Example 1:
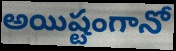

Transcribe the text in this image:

అయిష్టంగానో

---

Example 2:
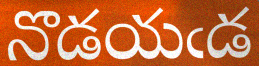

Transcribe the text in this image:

నొడయఁడ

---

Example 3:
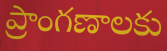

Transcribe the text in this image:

ప్రాంగణాలకు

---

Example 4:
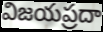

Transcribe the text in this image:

విజయప్రదా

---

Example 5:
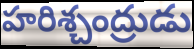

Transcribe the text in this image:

హరిశ్చంద్రుడు